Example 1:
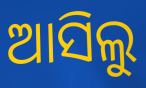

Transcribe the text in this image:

ଆସିଲୁ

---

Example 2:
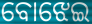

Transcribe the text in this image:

ବୋଝେଇ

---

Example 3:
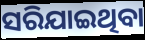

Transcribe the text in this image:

ସରିଯାଇଥିବା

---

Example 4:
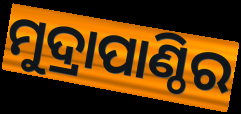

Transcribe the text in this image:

ମୁଦ୍ରାପାଣ୍ଠିର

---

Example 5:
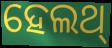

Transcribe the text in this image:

ହେଲଥ୍